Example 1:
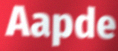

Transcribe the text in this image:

Aapde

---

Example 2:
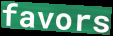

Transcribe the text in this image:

favors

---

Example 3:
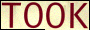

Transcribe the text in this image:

TOOK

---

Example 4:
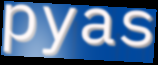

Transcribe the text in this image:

pyas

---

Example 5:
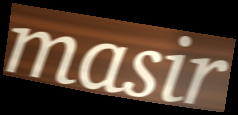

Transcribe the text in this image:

masir